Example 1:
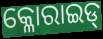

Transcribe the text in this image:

କ୍ଳୋରାଇଡ୍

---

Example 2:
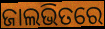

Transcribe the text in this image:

ଜାଲଭିତରେ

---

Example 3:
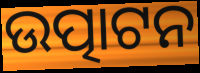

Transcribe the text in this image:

ଉତ୍ପାଟନ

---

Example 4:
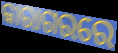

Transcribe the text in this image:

କାରାଗରରେ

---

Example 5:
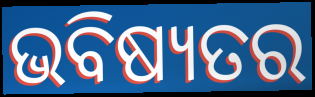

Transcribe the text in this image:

ଭବିଷ୍ୟତର